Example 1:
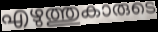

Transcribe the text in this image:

എഴുത്തുകാരുടെ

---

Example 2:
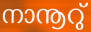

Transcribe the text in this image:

നാനൂറു്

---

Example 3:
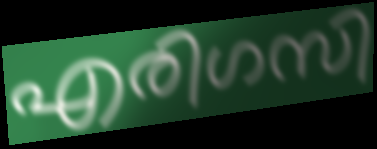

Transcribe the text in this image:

എരിഗസി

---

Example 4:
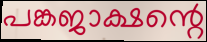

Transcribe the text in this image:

പങ്കജാക്ഷന്റെ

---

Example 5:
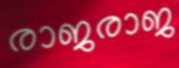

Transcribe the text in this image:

രാജരാജ